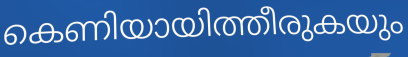
കെണിയായിത്തീരുകയും